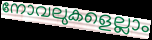
നോവലുകളെല്ലാം